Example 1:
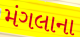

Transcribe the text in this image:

મંગલાના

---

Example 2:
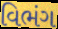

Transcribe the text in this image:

વિભંગ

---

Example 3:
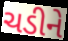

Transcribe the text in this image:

ચડીને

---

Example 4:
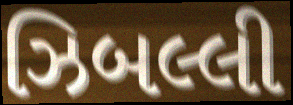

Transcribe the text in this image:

ઝિબલ્લી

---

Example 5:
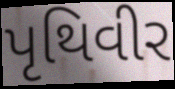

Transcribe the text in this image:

પૃથિવીર